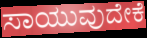
ಸಾಯುವುದೇಕೆ